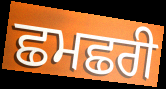
ਛਮਛਰੀ